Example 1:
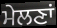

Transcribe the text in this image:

ਮੇਲਣਾਂ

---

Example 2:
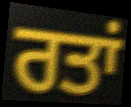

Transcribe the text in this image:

ਰਤਾਂ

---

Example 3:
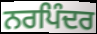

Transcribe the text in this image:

ਨਰਪਿੰਦਰ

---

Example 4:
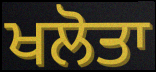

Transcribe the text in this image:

ਖਲੋਤਾ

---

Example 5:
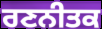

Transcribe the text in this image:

ਰਣਨੀਤਕ